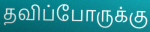
தவிப்போருக்கு